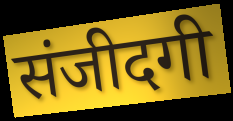
संजीदगी